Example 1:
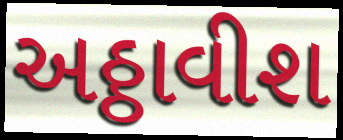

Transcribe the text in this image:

અઠ્ઠાવીશ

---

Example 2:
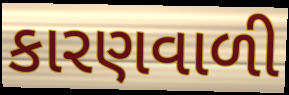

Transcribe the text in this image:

કારણવાળી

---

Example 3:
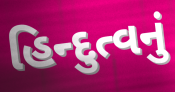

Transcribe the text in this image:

હિન્દુત્વનું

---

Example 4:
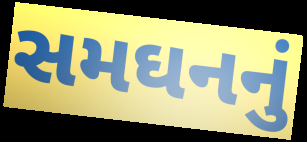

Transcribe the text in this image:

સમઘનનું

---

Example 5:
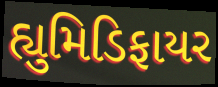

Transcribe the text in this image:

હ્યુમિડિફાયર